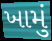
ખામું